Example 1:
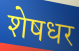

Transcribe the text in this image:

शेषधर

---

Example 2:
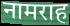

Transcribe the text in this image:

नामराह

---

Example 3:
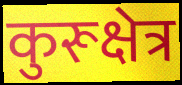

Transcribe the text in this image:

कुरूक्षेत्र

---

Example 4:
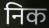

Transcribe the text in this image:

निक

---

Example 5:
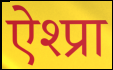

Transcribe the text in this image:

ऐश्प्रा